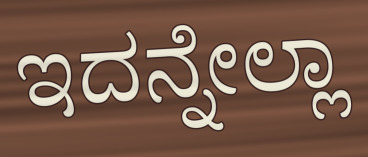
ಇದನ್ನೇಲ್ಲಾ